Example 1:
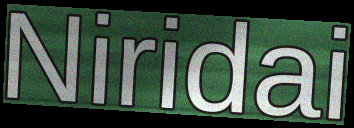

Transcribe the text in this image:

Niridai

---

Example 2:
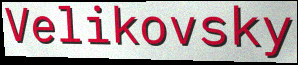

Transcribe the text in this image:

Velikovsky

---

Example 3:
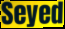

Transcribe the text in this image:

Seyed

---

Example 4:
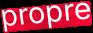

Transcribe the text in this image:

propre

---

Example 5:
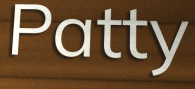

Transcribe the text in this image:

Patty